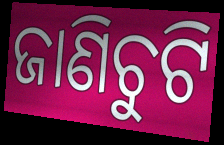
ଜାଣିଚୁଟି